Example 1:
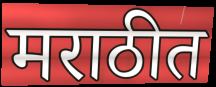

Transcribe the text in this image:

मराठीत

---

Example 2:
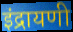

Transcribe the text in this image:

इंद्रायणी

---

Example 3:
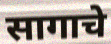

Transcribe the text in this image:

सागाचे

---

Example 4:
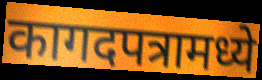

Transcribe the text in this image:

कागदपत्रामध्ये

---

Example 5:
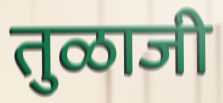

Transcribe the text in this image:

तुळाजी